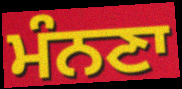
ਮੰਨਣਾ